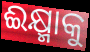
ଈକ୍ଷ୍ମାକୁ